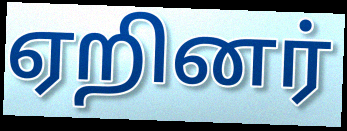
ஏறினர்